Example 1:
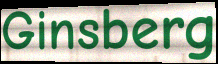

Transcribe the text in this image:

Ginsberg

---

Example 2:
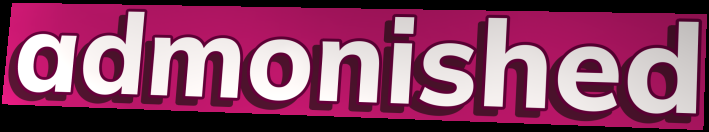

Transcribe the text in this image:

admonished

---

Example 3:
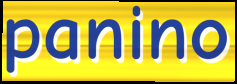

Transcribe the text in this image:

panino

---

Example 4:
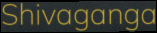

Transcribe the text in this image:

Shivaganga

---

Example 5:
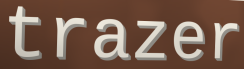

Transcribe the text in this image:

trazer